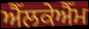
ਐੱਲਕੇਐੱਮ